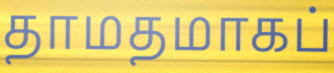
தாமதமாகப்